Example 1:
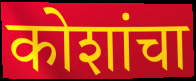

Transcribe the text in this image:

कोशांचा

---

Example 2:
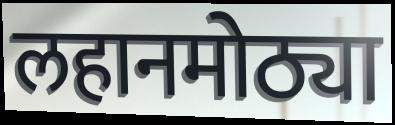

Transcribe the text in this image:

लहानमोठ्या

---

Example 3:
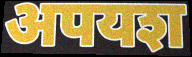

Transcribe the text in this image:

अपयश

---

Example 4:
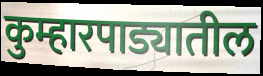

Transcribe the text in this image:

कुम्हारपाड्यातील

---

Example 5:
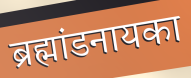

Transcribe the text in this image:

ब्रह्मांडनायका